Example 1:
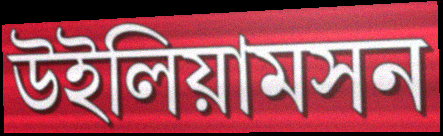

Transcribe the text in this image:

উইলিয়ামসন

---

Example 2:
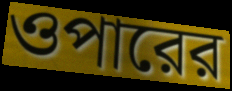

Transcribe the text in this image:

ওপারের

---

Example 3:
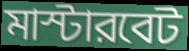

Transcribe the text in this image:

মাস্টারবেট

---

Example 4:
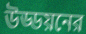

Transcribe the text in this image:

উড্ডয়নের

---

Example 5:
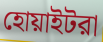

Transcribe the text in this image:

হোয়াইটরা